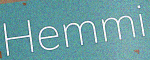
Hemmi